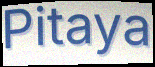
Pitaya